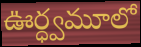
ఊర్ధ్వమూలో